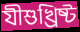
যীশুখ্রিষ্ট